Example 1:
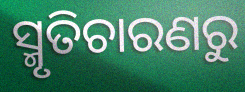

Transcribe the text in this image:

ସ୍ମୃତିଚାରଣରୁ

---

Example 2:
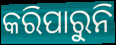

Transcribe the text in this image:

କରିପାରୁନି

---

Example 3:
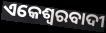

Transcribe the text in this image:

ଏକେଶ୍ଵରବାଦୀ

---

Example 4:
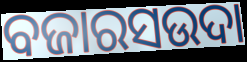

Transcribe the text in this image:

ବଜାରସଉଦା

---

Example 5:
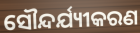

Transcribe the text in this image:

ସୌନ୍ଦର୍ଯ୍ୟୀକରଣ